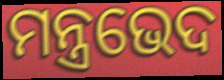
ମନ୍ତ୍ରଭେଦ